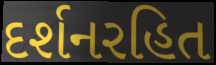
દર્શનરહિત